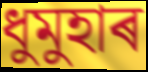
ধুমুহাৰ